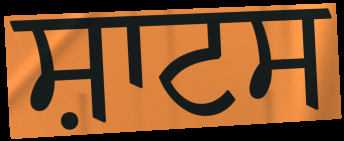
ਸ਼ਾਟਸ